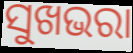
ସୁଖଭରା